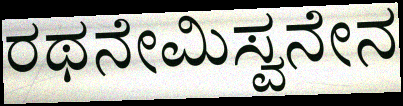
ರಥನೇಮಿಸ್ವನೇನ